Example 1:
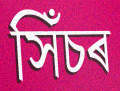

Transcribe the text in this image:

সিঁচৰ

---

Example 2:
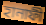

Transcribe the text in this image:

হানাফী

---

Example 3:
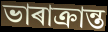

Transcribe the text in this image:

ভাৰাক্ৰান্ত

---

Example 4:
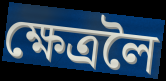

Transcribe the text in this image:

ক্ষেত্ৰলৈ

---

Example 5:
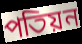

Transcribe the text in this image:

পতিয়ন